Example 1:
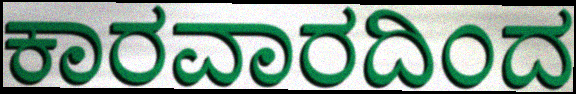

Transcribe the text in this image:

ಕಾರವಾರದಿಂದ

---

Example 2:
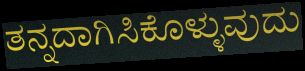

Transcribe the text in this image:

ತನ್ನದಾಗಿಸಿಕೊಳ್ಳುವುದು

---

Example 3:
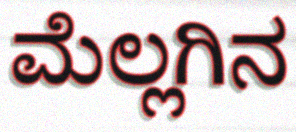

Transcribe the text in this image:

ಮೆಲ್ಲಗಿನ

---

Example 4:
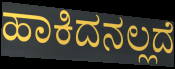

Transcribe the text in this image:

ಹಾಕಿದನಲ್ಲದೆ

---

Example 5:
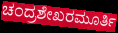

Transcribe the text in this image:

ಚಂದ್ರಶೇಖರಮೂರ್ತಿ